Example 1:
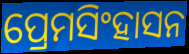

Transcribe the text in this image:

ପ୍ରେମସିଂହାସନ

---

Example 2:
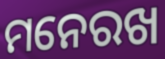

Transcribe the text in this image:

ମନେରଖ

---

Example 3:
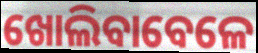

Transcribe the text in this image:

ଖୋଲିବାବେଳେ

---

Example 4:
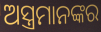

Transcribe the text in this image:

ଅସ୍ତ୍ରମାନଙ୍କର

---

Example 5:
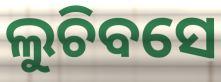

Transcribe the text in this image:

ଲୁଚିବସେ